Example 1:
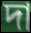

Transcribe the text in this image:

দা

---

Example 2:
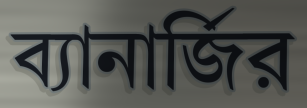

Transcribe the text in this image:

ব্যানার্জির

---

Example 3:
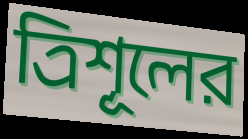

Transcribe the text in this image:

ত্রিশূলের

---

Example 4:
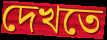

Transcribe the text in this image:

দেখতে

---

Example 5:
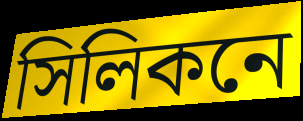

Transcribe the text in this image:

সিলিকনে